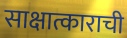
साक्षात्काराची